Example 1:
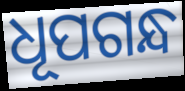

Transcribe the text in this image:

ଧୂପଗନ୍ଧ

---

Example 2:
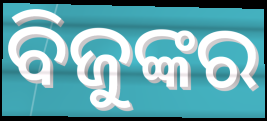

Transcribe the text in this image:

ବିଜୁଙ୍କର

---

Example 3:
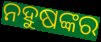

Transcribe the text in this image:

ନହୁଷଙ୍କର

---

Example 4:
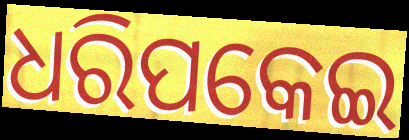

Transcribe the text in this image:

ଧରିପକେଇ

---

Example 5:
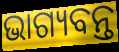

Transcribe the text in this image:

ଭାଗ୍ୟବନ୍ତ